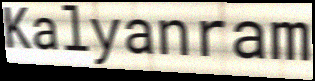
Kalyanram